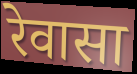
रेवासा